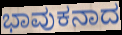
ಭಾವುಕನಾದ